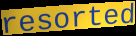
resorted